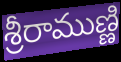
శ్రీరాముణ్ణి